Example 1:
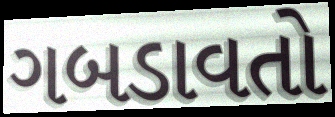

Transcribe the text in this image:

ગબડાવતો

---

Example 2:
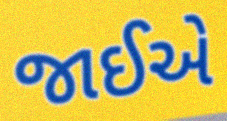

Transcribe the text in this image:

જાઈએ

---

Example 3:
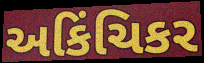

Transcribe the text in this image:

અકિંચિકર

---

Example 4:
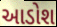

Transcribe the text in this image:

આડોશ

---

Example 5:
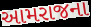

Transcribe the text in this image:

આમરાજના